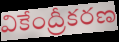
వికేంద్రీకరణ